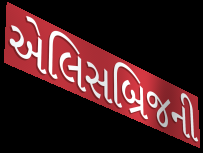
એલિસબ્રિજની